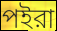
পইরা